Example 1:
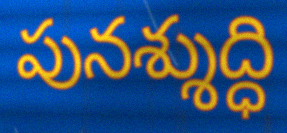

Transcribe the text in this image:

పునశ్శుద్ధి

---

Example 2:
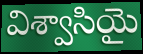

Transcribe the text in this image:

విశ్వాసియై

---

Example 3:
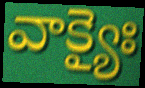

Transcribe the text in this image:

వాక్యైః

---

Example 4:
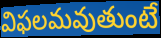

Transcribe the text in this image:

విఫలమవుతుంటే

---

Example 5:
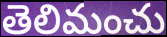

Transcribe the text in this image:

తెలిమంచు